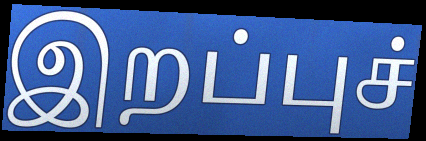
இறப்புச்